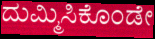
ದುಮ್ಮಿಸಿಕೊಂಡೇ